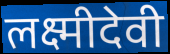
लक्ष्मीदेवी